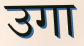
उगा